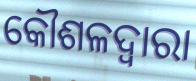
କୌଶଳଦ୍ୱାରା